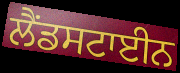
ਲੈਂਡਸਟਾਈਨ